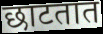
छाटतात